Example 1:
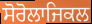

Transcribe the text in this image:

ਸੋਰੋਲਾਜਿਕਲ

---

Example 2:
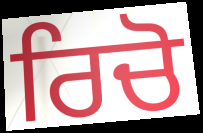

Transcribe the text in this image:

ਰਿਚੋ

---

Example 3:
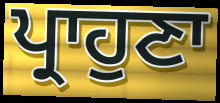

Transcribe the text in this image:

ਪ੍ਰਾਹੁਣਾ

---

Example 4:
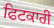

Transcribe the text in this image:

ਫਿਟਕਾਰੀ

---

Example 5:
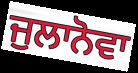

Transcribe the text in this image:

ਜੁਲਾਨੋਵਾ